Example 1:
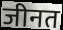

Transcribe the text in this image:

जीनत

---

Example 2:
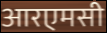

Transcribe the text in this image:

आरएमसी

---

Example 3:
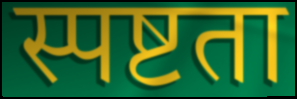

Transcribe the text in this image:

स्पष्टता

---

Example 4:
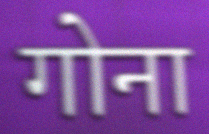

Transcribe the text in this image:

गोना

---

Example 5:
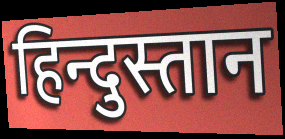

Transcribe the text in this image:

हिन्दुस्तान